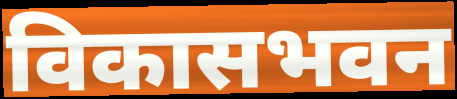
विकासभवन